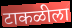
टाकळीला